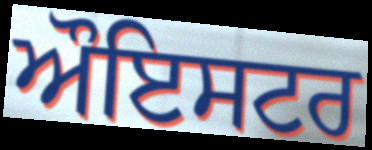
ਔਇਸਟਰ